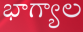
భాగ్యాల